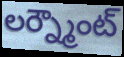
లర్న్మౌంట్